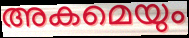
അകമെയും